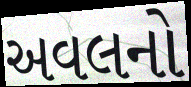
અવલનો